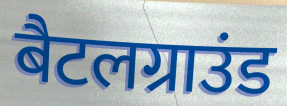
बैटलग्राउंड